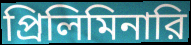
প্রিলিমিনারি